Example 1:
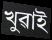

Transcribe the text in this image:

খুৱাই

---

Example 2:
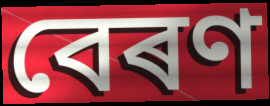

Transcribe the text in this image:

বেৰণ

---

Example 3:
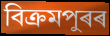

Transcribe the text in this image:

বিক্ৰমপুৰৰ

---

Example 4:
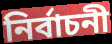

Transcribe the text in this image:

নিৰ্বাচনী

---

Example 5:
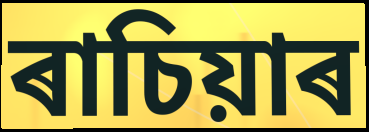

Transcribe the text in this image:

ৰাচিয়াৰ